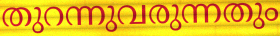
തുറന്നുവരുന്നതും